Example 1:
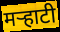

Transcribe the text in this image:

मऱ्हाटी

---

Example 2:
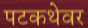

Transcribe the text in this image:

पटकथेवर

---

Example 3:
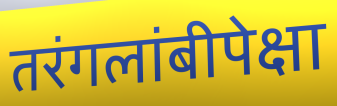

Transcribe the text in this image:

तरंगलांबीपेक्षा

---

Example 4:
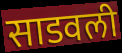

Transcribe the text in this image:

साडवली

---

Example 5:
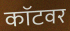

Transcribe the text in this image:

कॉटवर